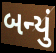
બન્યું